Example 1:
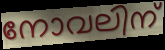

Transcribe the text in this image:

നോവലിന്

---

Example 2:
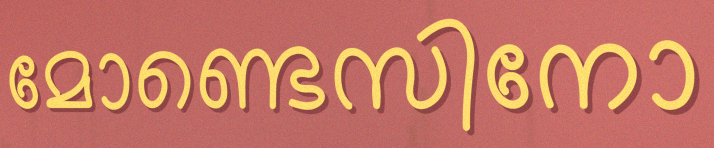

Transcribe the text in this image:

മോണ്ടെസിനോ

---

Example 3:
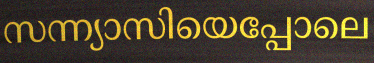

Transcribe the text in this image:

സന്ന്യാസിയെപ്പോലെ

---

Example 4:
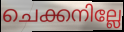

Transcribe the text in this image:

ചെക്കനില്ലേ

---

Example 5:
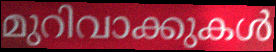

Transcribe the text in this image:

മുറിവാക്കുകൾ